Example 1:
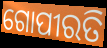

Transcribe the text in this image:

ଗୋପୀରତି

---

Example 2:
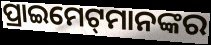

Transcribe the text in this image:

ପ୍ରାଇମେଟ୍‌ମାନଙ୍କର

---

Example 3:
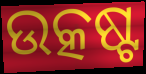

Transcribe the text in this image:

ଉତ୍କଷ୍ଟ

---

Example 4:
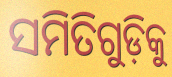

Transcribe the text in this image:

ସମିତିଗୁଡ଼ିକୁ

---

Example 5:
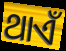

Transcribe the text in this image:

ଥାଏଁ